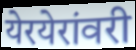
येरयेरांवरी